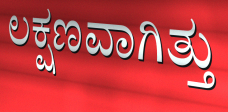
ಲಕ್ಷಣವಾಗಿತ್ತು